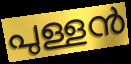
പുള്ളൻ